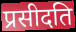
प्रसीदति